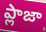
ప్లాజా